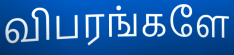
விபரங்களே